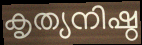
കൃത്യനിഷ്ഠ